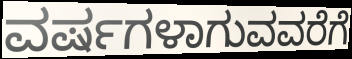
ವರ್ಷಗಳಾಗುವವರೆಗೆ